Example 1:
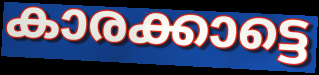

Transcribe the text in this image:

കാരക്കാട്ടെ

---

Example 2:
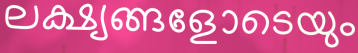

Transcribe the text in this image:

ലക്ഷ്യങ്ങളോടെയും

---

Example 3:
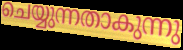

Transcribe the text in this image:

ചെയ്യുന്നതാകുന്നു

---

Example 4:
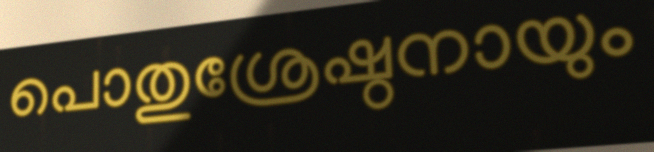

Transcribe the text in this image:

പൊതുശ്രേഷ്ഠനായും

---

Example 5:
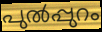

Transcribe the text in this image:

പുൽപ്പുറം